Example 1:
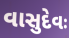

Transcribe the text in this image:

વાસુદેવઃ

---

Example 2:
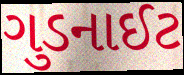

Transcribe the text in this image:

ગુડનાઈટ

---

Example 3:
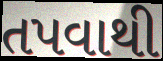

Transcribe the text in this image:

તપવાથી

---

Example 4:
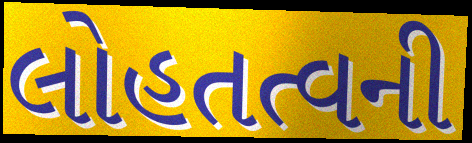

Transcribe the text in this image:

લોહતત્વની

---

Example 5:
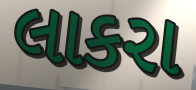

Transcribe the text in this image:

લાકરા